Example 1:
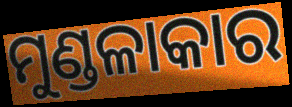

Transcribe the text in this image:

ମୁଣ୍ଡଳାକାର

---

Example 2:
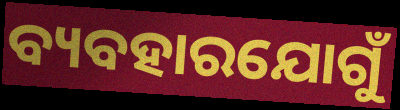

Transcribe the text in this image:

ବ୍ୟବହାରଯୋଗୁଁ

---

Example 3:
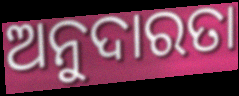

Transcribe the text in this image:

ଅନୁଦାରତା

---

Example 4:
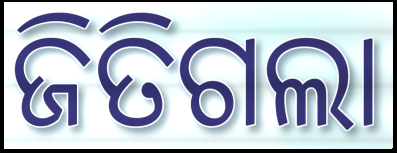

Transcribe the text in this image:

ଜିତିଗଲା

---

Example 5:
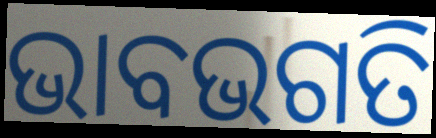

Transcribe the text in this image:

ଭାବଭଗତି